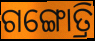
ଗଙ୍ଗୋତ୍ରି